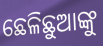
ଛେଳିଛୁଆଙ୍କୁ